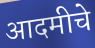
आदमीचे